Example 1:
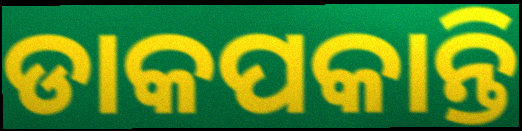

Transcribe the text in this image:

ଡାକପକାନ୍ତି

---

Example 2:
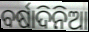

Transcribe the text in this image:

ବର୍ଷାଦିନିଆ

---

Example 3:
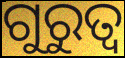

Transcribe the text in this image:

ଗୁରୁତ୍ୱ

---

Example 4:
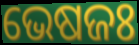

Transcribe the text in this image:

ଭେଷଜଃ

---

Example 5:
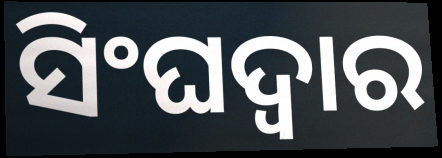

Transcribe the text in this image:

ସିଂଘଦ୍ୱାର